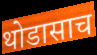
थोडासाच